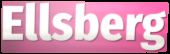
Ellsberg